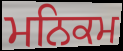
ਮਨਿਕਮ